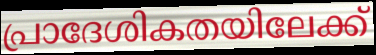
പ്രാദേശികതയിലേക്ക്